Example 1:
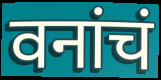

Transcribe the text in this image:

वनांचं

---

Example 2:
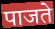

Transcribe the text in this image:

पाजते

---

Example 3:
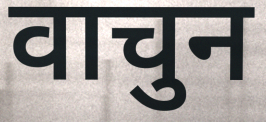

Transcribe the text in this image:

वाचुन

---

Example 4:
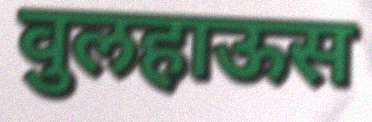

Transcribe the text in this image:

वुलहाऊस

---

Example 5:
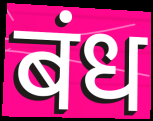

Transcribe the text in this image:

बंध